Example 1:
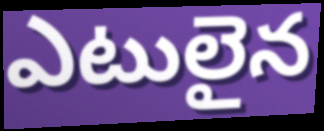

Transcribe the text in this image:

ఎటులైన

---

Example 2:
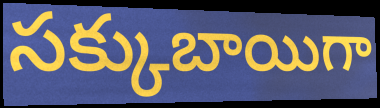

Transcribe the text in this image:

సక్కుబాయిగా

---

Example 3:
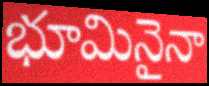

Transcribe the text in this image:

భూమినైనా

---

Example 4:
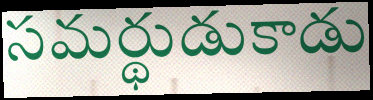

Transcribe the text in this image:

సమర్థుడుకాడు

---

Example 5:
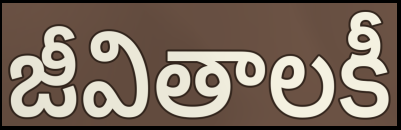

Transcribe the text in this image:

జీవితాలకీ